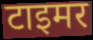
टाइमर